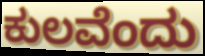
ಕುಲವೆಂದು